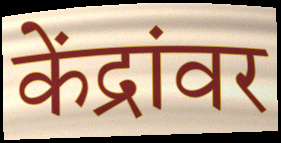
केंद्रांवर